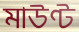
মাউণ্ট